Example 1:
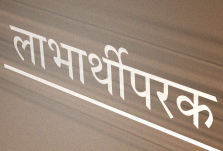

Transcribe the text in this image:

लाभार्थीपरक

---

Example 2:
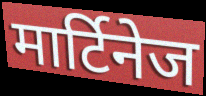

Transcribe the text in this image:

मार्टिनेज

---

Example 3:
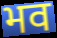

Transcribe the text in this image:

भव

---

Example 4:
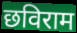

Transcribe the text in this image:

छविराम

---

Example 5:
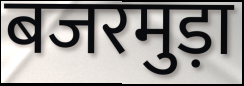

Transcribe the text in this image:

बजरमुड़ा